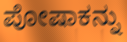
ಪೋಷಾಕನ್ನು